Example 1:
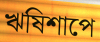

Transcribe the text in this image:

ঋষিশাপে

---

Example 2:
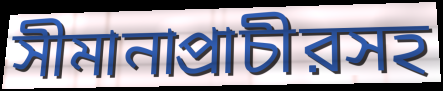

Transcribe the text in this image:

সীমানাপ্রাচীরসহ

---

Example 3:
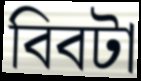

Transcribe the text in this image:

বিবটা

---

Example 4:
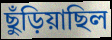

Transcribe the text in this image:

ছুঁড়িয়াছিল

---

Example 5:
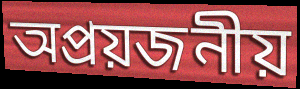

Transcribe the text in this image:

অপ্রয়জনীয়